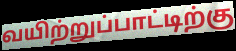
வயிற்றுப்பாட்டிற்கு